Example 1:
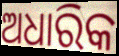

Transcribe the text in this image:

ଅଧାରିକ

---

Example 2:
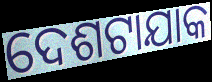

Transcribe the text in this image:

ଦେଶଟାଯାକ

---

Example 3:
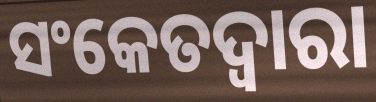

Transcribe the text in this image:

ସଂକେତଦ୍ଵାରା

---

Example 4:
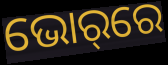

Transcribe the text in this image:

ଭୋର୍‌ରେ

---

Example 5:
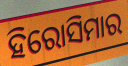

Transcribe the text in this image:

ହିରୋସିମାର